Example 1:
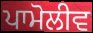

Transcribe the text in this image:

ਪਾਮੋਲੀਵ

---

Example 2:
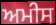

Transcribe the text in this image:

ਅਮੀਸ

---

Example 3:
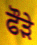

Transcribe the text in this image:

ਫੌੜੇ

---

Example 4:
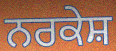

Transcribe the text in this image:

ਨਰਕੇਸ਼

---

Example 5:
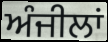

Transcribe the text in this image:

ਅੰਜੀਲਾਂ